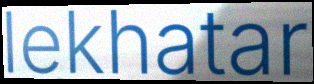
lekhatar